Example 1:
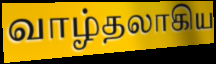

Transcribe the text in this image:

வாழ்தலாகிய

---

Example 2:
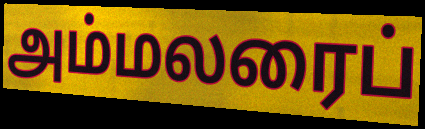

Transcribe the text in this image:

அம்மலரைப்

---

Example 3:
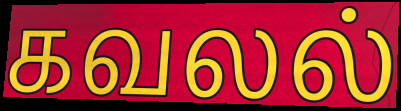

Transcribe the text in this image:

கவலல்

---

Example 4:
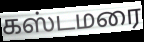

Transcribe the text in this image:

கஸ்டமரை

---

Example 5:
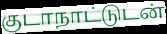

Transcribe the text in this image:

குடாநாட்டுடன்